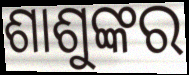
ଶାଶୁଙ୍କର